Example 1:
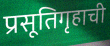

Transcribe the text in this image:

प्रसूतिगृहाची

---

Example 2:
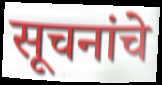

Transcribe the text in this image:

सूचनांचे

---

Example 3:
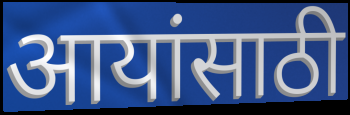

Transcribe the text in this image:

आयांसाठी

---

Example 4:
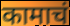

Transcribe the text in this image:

कामाचं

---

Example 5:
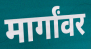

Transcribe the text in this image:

मार्गांवर